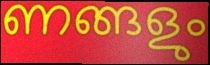
ണങ്ങളും